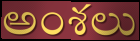
అంశలు